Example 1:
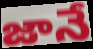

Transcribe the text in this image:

జానే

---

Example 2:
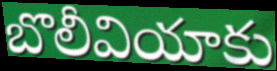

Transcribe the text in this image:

బొలీవియాకు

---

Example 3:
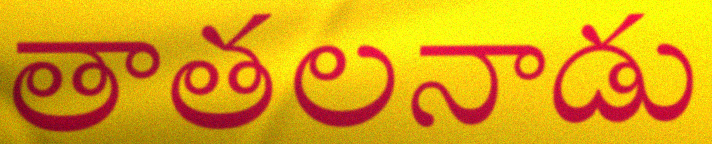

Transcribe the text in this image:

తాతలనాడు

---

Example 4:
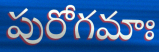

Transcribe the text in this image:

పురోగమాః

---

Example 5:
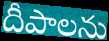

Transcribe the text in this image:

దీపాలను